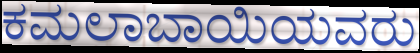
ಕಮಲಾಬಾಯಿಯವರು